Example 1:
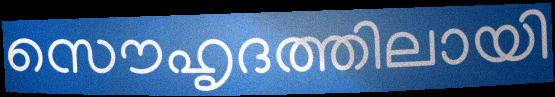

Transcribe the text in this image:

സൌഹൃദത്തിലായി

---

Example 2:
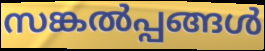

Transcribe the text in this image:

സങ്കൽപ്പങ്ങൾ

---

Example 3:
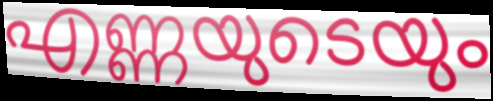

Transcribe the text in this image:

എണ്ണയുടെയും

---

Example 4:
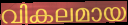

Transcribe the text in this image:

വികലമായ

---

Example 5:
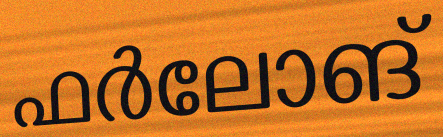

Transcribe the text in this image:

ഫർലോങ്